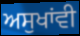
ਅਸੁਖਾਂਵੀ